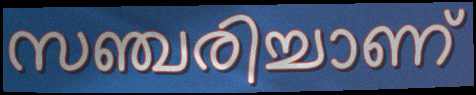
സഞ്ചരിച്ചാണ്